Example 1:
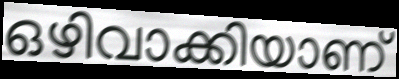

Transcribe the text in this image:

ഒഴിവാക്കിയാണ്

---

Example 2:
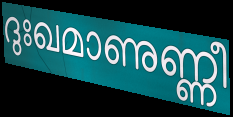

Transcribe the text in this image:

ദുഃഖമാണുണ്ണീ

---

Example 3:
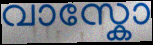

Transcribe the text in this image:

വാസ്കോ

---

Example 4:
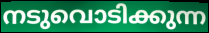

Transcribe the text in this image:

നടുവൊടിക്കുന്ന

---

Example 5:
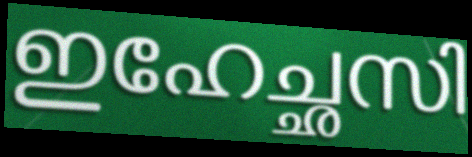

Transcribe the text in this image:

ഇഹേച്ഛസി